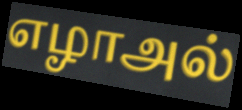
எழாஅல்